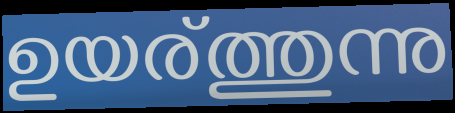
ഉയര്ത്തുന്നു